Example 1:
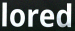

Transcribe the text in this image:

lored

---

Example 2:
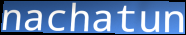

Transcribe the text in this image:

nachatun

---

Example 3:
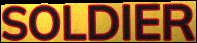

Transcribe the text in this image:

SOLDIER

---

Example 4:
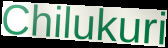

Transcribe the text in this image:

Chilukuri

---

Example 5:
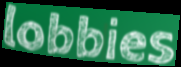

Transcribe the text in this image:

lobbies